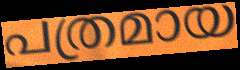
പത്രമായ